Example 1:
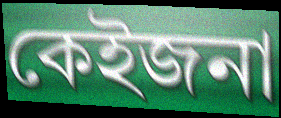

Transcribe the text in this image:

কেইজনা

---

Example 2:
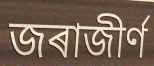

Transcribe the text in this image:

জৰাজীৰ্ণ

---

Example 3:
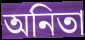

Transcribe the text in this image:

অনিতা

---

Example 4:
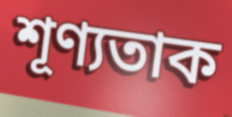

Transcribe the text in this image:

শূণ্যতাক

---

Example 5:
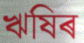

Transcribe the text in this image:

ঋষিৰ